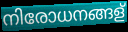
നിരോധനങ്ങള്